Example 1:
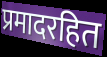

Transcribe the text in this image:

प्रमादरहित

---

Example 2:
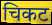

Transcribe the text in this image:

चिकट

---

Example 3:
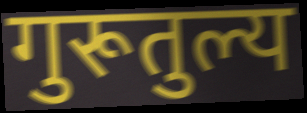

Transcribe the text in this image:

गुरूतुल्य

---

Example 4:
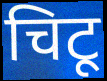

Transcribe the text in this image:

चिटू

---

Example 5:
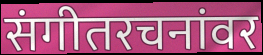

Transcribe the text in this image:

संगीतरचनांवर